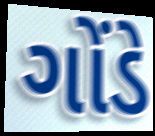
ગોંડે